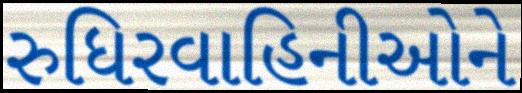
રુધિરવાહિનીઓને